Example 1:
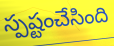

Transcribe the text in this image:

స్పష్టంచేసింది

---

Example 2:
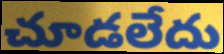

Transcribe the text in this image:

చూడలేదు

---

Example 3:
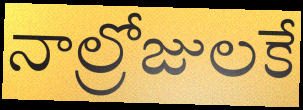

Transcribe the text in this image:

నాల్రోజులకే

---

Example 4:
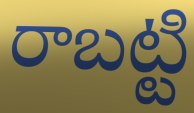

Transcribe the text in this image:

రాబట్టి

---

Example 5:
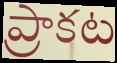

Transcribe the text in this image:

ప్రాకట